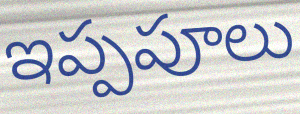
ఇప్పపూలు